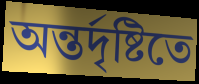
অন্তর্দৃষ্টিতে